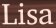
Lisa